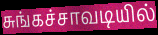
சுங்கச்சாவடியில்